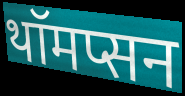
थॉमप्सन